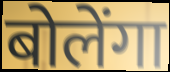
बोलेंगा